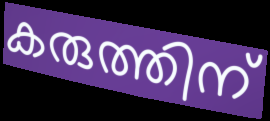
കരുത്തിന്